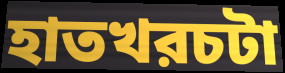
হাতখরচটা